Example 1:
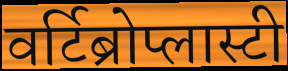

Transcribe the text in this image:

वर्टिब्रोप्लास्टी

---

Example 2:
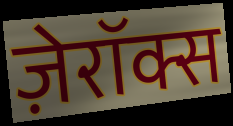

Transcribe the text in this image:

ज़ेरॉक्स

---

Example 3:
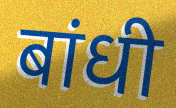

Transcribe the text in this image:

बांधी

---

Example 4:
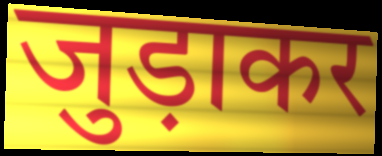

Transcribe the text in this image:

जुड़ाकर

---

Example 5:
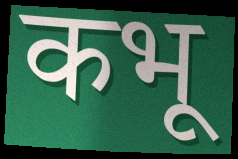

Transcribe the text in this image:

कभू